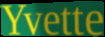
Yvette